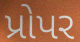
પ્રોપર